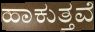
ಹಾಕುತ್ತವೆ